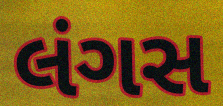
લંગસ